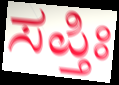
ಸಪ್ತಿಃ